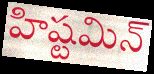
హిష్టమిన్